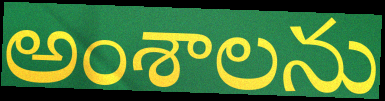
అంశాలను